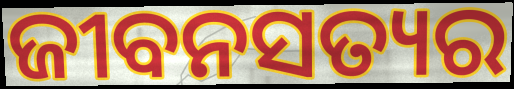
ଜୀବନସତ୍ୟର